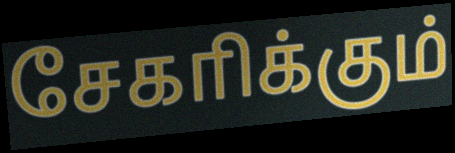
சேகரிக்கும்